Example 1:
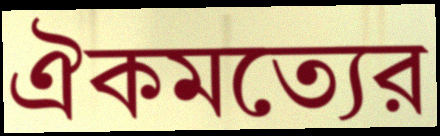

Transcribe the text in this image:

ঐকমত্যের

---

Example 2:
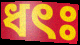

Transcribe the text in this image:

ধৎঃ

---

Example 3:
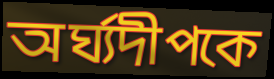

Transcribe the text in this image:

অর্ঘ্যদীপকে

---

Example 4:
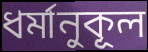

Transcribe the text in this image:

ধর্মানুকূল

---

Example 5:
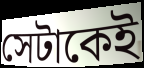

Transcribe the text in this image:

সেটাকেই